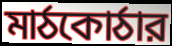
মাঠকোঠার